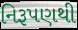
નિરૂપણથી